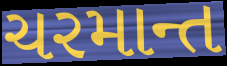
ચરમાન્ત